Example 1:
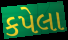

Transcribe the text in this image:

કપેલા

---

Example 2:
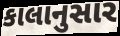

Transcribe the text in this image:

કાલાનુસાર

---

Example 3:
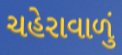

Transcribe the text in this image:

ચહેરાવાળું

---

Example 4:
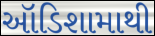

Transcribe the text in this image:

ઑડિશામાથી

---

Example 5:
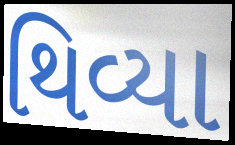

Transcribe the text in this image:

થિવ્યા